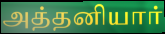
அத்தனியார்